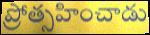
ప్రోత్సహించాడు